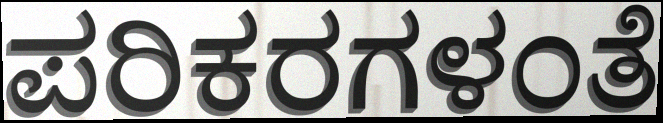
ಪರಿಕರಗಳಂತೆ